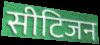
सीटिजन